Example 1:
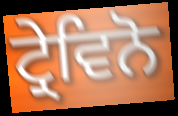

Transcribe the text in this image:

ਟ੍ਰੇਵਿਨੋ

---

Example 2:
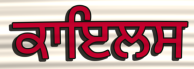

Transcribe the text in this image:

ਕਾਇਲਸ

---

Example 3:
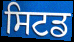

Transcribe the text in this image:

ਸਿਟਡ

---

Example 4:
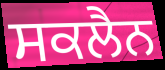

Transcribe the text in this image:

ਸਕਲੈਨ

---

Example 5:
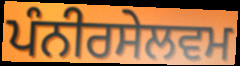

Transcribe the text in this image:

ਪੰਨੀਰਸੇਲਵਮ